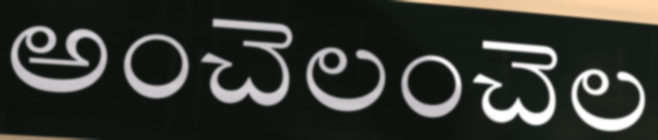
అంచెలంచెల